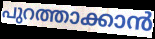
പുറത്താക്കാൻ